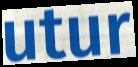
utur